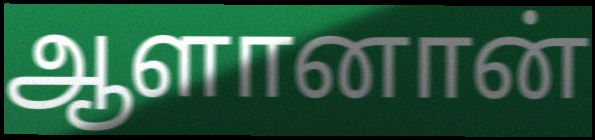
ஆளானான்